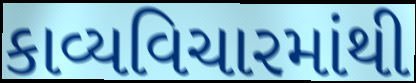
કાવ્યવિચારમાંથી